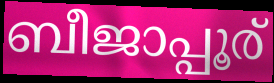
ബീജാപ്പൂര്